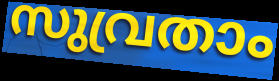
സുവ്രതാം